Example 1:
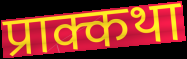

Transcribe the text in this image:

प्राक्कथा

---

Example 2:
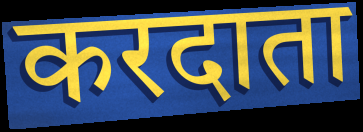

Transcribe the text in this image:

करदाता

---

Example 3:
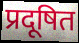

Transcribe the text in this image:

प्रदूषित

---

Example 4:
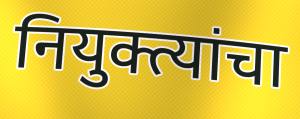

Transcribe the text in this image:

नियुक्त्यांचा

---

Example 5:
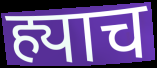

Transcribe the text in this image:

ह्याच